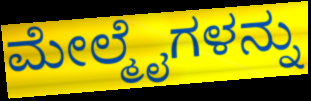
ಮೇಲ್ಮೈಗಳನ್ನು